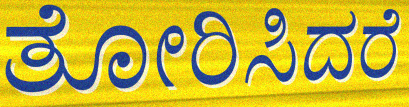
ತೋರಿಸಿದರೆ